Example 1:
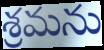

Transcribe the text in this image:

శ్రమను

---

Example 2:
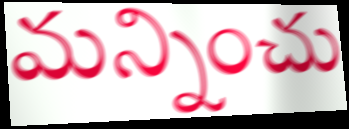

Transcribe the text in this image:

మన్నించు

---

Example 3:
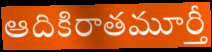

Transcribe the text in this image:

ఆదికిరాతమూర్తీ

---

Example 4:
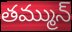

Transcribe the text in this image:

తమ్మున్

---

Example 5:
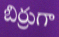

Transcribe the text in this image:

బిర్రుగా